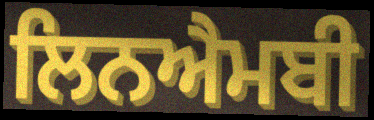
ਲਿਨਐਮਬੀ